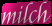
milch